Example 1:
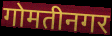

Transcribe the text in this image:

गोमतीनगर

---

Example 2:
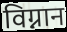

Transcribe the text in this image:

विग्नान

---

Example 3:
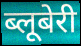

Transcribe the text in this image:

ब्लूबेरी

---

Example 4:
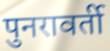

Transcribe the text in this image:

पुनरावर्ती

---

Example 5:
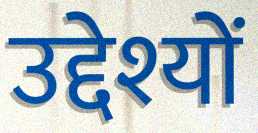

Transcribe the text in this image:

उद्देश्यों